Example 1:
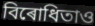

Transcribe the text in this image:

বিৰোধিতাও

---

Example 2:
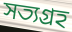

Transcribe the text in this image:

সত্যগ্ৰহ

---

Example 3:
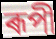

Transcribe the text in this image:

ৰূপী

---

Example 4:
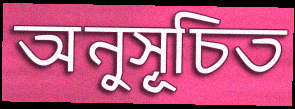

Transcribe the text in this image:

অনুসূচিত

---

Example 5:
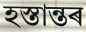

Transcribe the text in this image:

হস্তান্তৰ